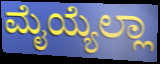
ಮೈಯ್ಯೆಲ್ಲಾ